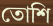
তোশি